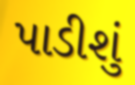
પાડીશું